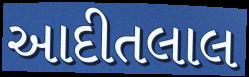
આદીતલાલ